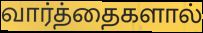
வார்த்தைகளால்